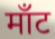
माँट